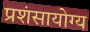
प्रशंसायोग्य